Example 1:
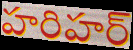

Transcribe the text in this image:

హరిహర్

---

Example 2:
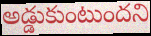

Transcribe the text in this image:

అడ్డుకుంటుందని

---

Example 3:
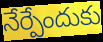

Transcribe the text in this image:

నేర్పేందుకు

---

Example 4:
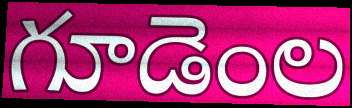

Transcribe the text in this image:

గూడెంల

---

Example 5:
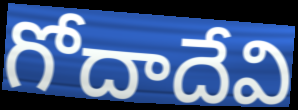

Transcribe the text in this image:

గోదాదేవి